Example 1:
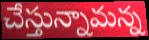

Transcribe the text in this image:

చేస్తున్నామన్న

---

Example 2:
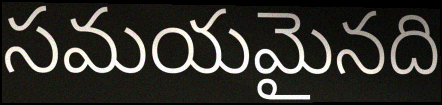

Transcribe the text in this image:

సమయమైనది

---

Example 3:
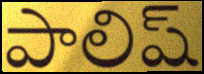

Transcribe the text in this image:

పాలిష్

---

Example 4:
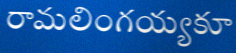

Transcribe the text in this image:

రామలింగయ్యకూ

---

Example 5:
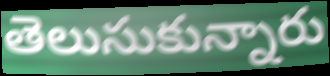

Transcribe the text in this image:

తెలుసుకున్నారు